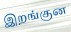
இறங்குன